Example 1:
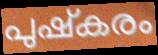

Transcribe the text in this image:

പുഷ്കരം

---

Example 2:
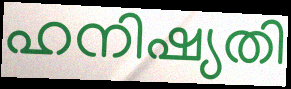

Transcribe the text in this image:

ഹനിഷ്യതി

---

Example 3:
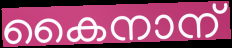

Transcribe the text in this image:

കൈനാന്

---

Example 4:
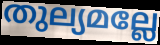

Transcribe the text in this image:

തുല്യമല്ലേ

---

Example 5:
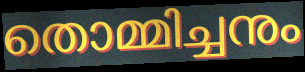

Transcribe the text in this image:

തൊമ്മിച്ചനും